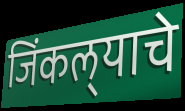
जिंकल्याचे